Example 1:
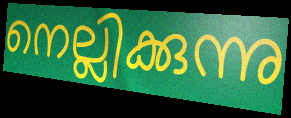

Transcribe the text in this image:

നെല്ലിക്കുന്നു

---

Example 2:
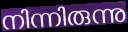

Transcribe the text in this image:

നിന്നിരുന്നു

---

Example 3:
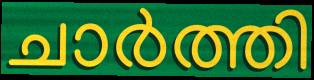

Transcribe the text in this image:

ചാർത്തി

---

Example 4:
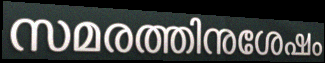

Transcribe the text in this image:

സമരത്തിനുശേഷം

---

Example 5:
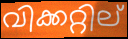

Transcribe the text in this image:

വിക്കറ്റില്